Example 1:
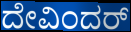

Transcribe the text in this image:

ದೇವಿಂದರ್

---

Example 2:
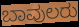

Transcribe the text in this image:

ಬಾವುಲರು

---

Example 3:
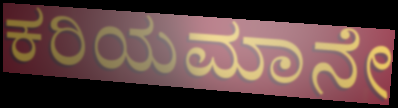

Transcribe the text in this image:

ಕರಿಯಮಾನೇ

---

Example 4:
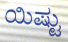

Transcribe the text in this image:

ಯಿಷ್ಟು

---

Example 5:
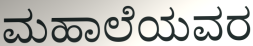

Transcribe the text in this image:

ಮಹಾಲೆಯವರ